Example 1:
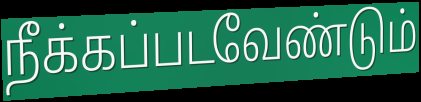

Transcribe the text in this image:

நீக்கப்படவேண்டும்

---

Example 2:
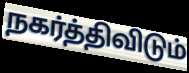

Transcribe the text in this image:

நகர்த்திவிடும்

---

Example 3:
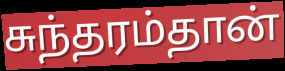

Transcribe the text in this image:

சுந்தரம்தான்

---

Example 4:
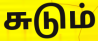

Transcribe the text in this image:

சுடும்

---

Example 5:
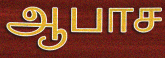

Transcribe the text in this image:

ஆபாச